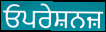
ਓਪਰੇਸ਼ਨਜ਼